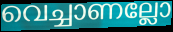
വെച്ചാണല്ലോ